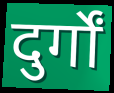
दुर्गों